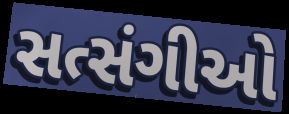
સત્સંગીઓ